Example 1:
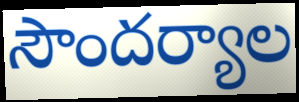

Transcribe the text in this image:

సౌందర్యాల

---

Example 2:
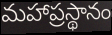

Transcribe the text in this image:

మహాప్రస్థానం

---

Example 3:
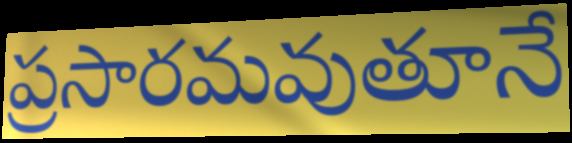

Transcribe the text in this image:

ప్రసారమవుతూనే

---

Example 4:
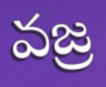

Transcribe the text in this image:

వజ్ర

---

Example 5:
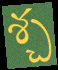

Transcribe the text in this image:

శ్చ